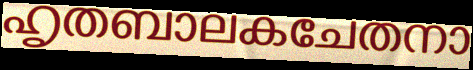
ഹൃതബാലകചേതനാ